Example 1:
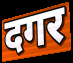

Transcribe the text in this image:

दगर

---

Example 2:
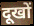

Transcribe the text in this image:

दूखों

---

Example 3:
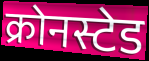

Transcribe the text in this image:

क्रोनस्टेड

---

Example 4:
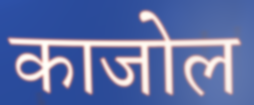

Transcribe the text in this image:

काजोल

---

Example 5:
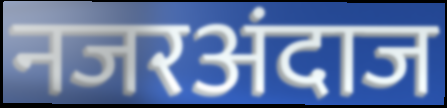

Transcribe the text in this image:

नजरअंदाज